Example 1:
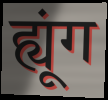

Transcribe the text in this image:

ह्यूंग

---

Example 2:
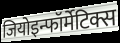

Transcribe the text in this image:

जियोइन्फॉर्मेटिक्स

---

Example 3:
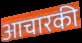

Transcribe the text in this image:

आचारकी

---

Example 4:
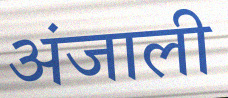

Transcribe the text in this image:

अंजाली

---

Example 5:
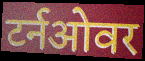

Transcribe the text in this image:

टर्नओवर